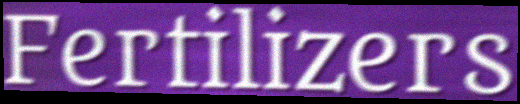
Fertilizers